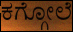
ಕಗ್ಗೋಲೆ